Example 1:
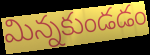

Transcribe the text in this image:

మిన్నకుండడం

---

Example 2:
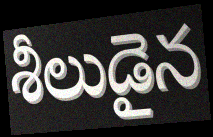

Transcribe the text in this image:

శీలుడైన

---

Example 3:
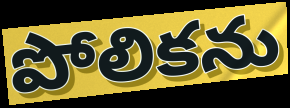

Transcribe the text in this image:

పోలికను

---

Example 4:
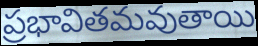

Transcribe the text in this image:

ప్రభావితమవుతాయి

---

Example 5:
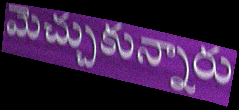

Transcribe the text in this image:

మెచ్చుకున్నారు